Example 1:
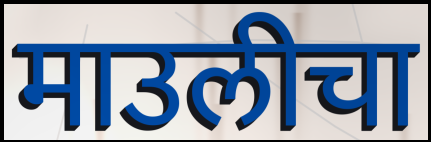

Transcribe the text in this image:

माउलीचा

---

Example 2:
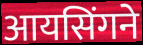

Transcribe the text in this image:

आयसिंगने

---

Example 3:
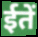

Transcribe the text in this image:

ईतें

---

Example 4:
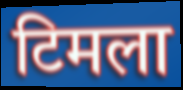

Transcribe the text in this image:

टिमला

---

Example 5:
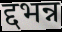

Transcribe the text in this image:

द्दभन्न